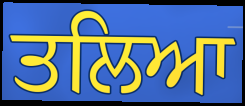
ਤਲਿਆ